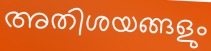
അതിശയങ്ങളും